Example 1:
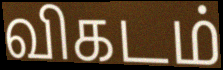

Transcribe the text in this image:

விகடம்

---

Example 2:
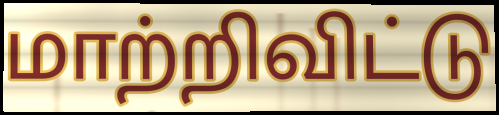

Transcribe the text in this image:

மாற்றிவிட்டு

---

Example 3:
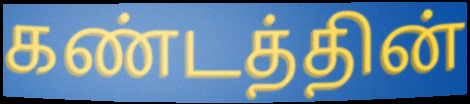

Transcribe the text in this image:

கண்டத்தின்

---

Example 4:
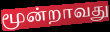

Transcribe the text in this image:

மூன்றாவது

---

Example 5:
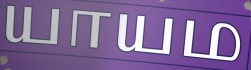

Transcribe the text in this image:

யாயம